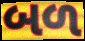
બળ